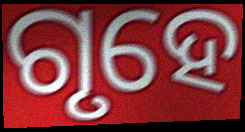
ଗୃହେ